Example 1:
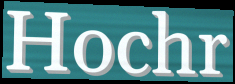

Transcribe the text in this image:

Hochr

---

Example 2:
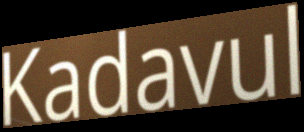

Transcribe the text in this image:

Kadavul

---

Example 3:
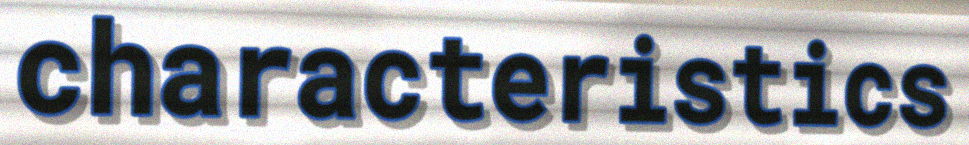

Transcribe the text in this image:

characteristics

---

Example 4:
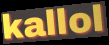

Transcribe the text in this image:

kallol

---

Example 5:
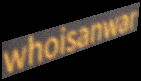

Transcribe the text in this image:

whoisanwar